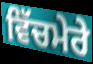
ਵਿੱਚਮੇਰੇ